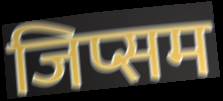
जिप्सम